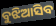
ବୁଝିଆସିବ